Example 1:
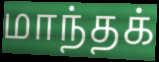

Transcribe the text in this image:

மாந்தக்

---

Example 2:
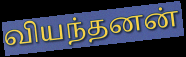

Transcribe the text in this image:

வியந்தனன்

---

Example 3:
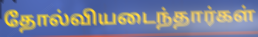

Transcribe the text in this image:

தோல்வியடைந்தார்கள்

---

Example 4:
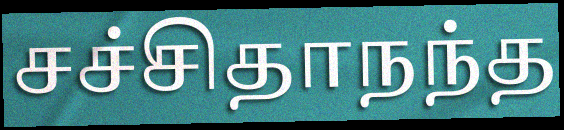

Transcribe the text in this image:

சச்சிதாநந்த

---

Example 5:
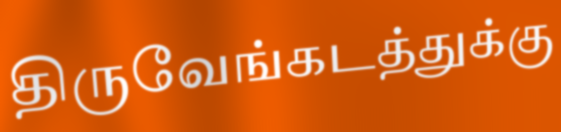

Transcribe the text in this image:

திருவேங்கடத்துக்கு